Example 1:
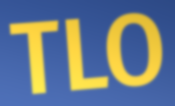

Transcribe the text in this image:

TLO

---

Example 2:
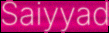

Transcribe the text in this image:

Saiyyad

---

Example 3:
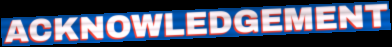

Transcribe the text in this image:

ACKNOWLEDGEMENT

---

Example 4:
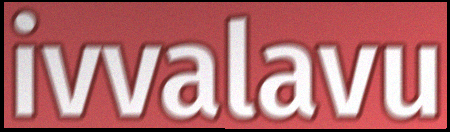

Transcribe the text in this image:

ivvalavu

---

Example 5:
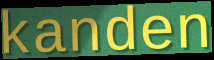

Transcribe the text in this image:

kanden